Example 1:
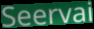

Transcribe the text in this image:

Seervai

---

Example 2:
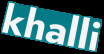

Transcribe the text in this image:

khalli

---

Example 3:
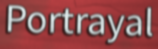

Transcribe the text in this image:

Portrayal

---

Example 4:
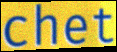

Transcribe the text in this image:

chet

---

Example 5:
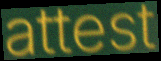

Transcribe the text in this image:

attest